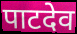
पाटदेव